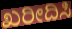
ಖರೀದಿಸಿ